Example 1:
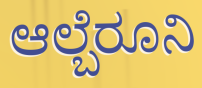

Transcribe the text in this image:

ಆಲ್ಬೆರೂನಿ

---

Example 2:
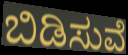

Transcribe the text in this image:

ಬಿಡಿಸುವೆ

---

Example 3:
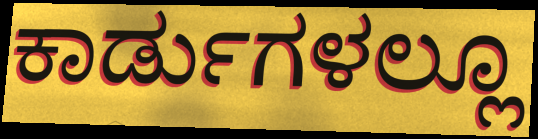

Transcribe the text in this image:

ಕಾರ್ಡುಗಳಲ್ಲೂ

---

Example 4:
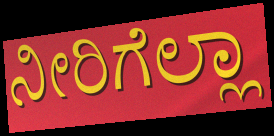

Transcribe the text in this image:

ನೀರಿಗೆಲ್ಲಾ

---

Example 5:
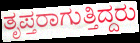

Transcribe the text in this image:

ತೃಪ್ತರಾಗುತ್ತಿದ್ದರು